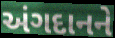
અંગદાનને